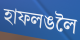
হাফলঙলৈ